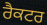
ਰੈਕਟਰ